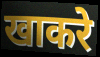
खाकरे